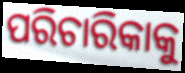
ପରିଚାରିକାକୁ